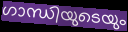
ഗാന്ധിയുടെയും